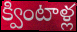
క్వింటాళ్ల